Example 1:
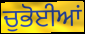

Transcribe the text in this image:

ਚੁਭੋਈਆਂ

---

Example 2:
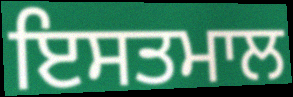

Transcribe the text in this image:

ਇਸਤਮਾਲ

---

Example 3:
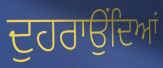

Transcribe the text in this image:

ਦੁਹਰਾਉਂਦਿਆਂ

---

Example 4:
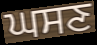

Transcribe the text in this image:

ਘਸਣ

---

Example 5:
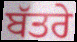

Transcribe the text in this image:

ਬੱਤਰੇ